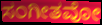
ಸಂಗೀತವೋ